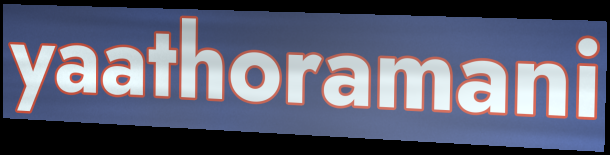
yaathoramani